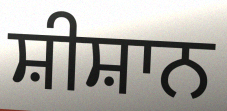
ਸ਼ੀਸ਼ਾਨ